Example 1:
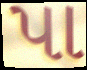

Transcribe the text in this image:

પા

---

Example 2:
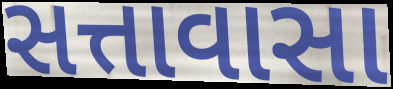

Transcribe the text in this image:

સત્તાવાસા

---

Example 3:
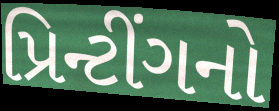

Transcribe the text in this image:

પ્રિન્ટીંગનો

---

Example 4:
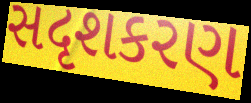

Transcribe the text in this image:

સદૃશકરણ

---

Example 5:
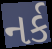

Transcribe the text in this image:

નર્ક